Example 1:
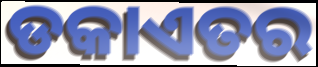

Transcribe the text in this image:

ଡକାଏତର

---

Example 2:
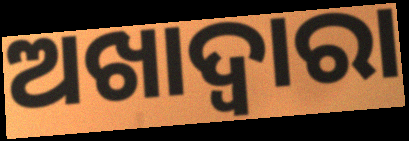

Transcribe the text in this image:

ଅଖାଦ୍ୱାରା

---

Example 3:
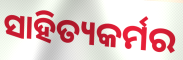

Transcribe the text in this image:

ସାହିତ୍ୟକର୍ମର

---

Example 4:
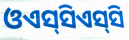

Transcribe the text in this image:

ଓଏସ୍‌ସିଏସ୍‌ସି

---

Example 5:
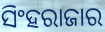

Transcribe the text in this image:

ସିଂହରାଜାର